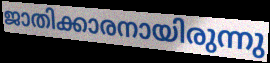
ജാതിക്കാരനായിരുന്നു